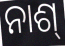
ନାଶ୍